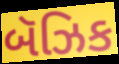
બૅઝિક